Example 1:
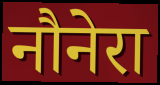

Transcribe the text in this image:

नौनेरा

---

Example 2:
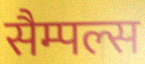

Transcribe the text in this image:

सैम्‍पल्‍स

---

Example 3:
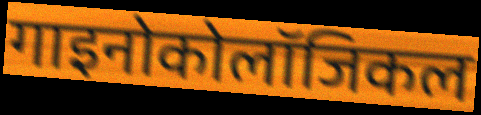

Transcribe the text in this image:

गाइनोकोलॉजिकल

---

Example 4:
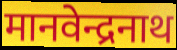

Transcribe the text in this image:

मानवेन्द्रनाथ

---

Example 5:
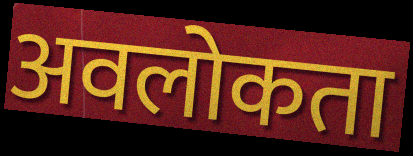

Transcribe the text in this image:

अवलोकता